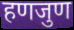
हणजुण